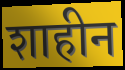
शाहीन